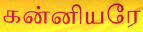
கன்னியரே